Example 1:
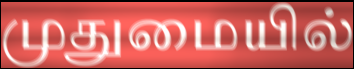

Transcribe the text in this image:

முதுமையில்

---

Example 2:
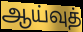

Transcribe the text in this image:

ஆய்வுத்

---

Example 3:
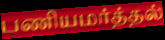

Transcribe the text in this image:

பணியமர்த்தல்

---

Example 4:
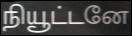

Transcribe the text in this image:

நியூட்டனே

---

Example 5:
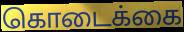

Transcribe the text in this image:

கொடைக்கை